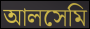
আলসেমি